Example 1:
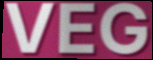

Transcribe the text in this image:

VEG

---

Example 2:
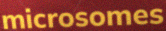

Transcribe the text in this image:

microsomes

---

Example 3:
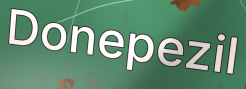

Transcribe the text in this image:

Donepezil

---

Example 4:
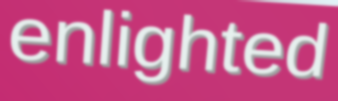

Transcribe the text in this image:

enlighted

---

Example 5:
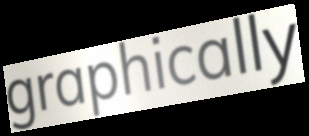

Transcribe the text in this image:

graphically